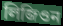
লিজিওন